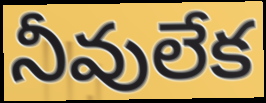
నీవులేక